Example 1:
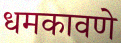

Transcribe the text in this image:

धमकावणे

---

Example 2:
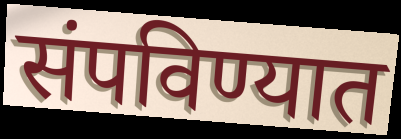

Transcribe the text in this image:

संपविण्यात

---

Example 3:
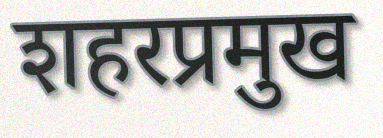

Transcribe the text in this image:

शहरप्रमुख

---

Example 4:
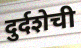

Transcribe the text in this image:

दुर्दशेची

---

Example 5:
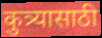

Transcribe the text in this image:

कुत्र्यासाठी